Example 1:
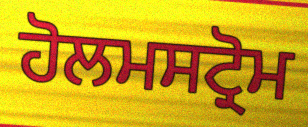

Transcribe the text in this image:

ਹੋਲਮਸਟ੍ਰੋਮ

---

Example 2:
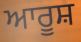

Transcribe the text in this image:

ਆਰੂਸ਼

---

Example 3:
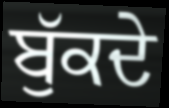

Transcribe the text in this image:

ਬੁੱਕਦੇ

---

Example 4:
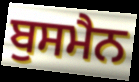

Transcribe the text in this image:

ਬੁਸਮੈਨ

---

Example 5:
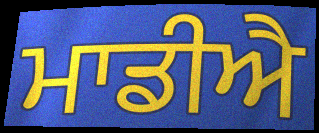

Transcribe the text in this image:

ਮਾਡੀਐ